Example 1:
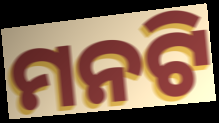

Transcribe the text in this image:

ମନଟି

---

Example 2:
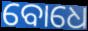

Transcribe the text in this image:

ବୋଧେ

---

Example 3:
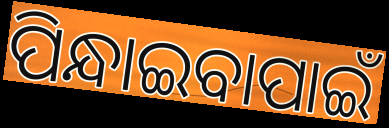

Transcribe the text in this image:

ପିନ୍ଧାଇବାପାଇଁ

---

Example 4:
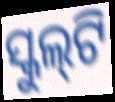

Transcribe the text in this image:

ସ୍କୁଲ୍‌ଟି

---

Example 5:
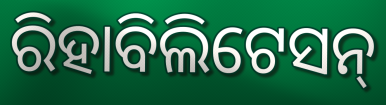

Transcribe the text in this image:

ରିହାବିଲିଟେସନ୍